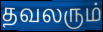
தவலரும்